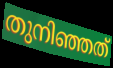
തുനിഞ്ഞത്